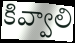
కివ్వాలి